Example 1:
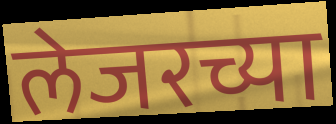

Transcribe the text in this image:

लेजरच्या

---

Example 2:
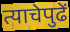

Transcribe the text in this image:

त्याचेपुढें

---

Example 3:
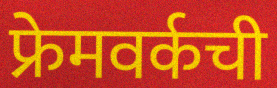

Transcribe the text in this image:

फ्रेमवर्कची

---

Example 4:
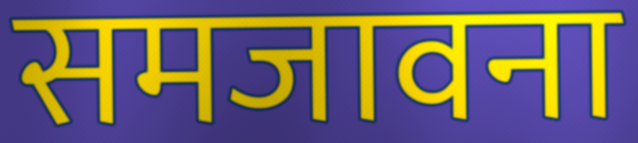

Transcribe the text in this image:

समजावना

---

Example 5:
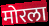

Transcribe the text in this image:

मोरला